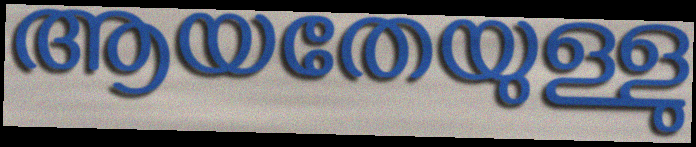
ആയതേയുള്ളു